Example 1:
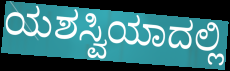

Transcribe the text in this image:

ಯಶಸ್ವಿಯಾದಲ್ಲಿ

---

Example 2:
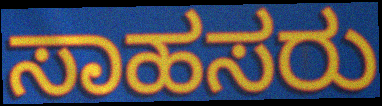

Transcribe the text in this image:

ಸಾಹಸರು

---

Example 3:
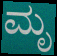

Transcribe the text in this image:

ಮೃ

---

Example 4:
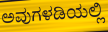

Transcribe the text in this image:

ಅವುಗಳಡಿಯಲ್ಲಿ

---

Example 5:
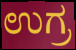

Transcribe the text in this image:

ಉಗ್ರ